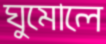
ঘুমোলে